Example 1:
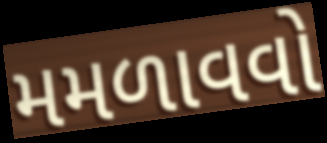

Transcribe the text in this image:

મમળાવવો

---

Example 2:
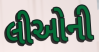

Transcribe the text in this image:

લીઓની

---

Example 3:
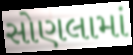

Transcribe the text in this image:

સોણલામાં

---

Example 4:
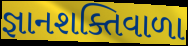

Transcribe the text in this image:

જ્ઞાનશક્તિવાળા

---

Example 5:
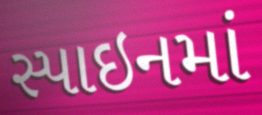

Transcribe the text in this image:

સ્પાઇનમાં